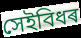
সেইবিধৰ